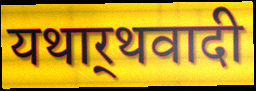
यथार्थवादी